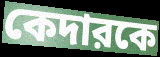
কেদারকে